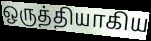
ஒருத்தியாகிய